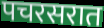
पचरसरात